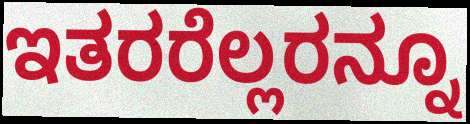
ಇತರರೆಲ್ಲರನ್ನೂ